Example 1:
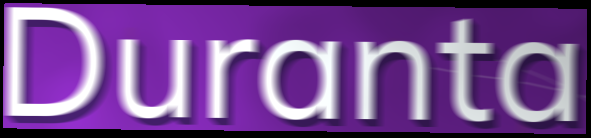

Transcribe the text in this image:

Duranta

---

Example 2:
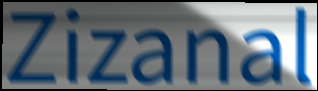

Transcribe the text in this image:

Zizanal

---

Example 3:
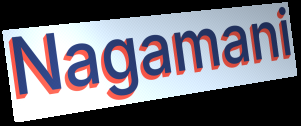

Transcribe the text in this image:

Nagamani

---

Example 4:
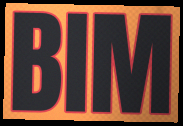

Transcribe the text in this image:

BIM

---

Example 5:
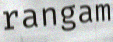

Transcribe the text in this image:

rangam